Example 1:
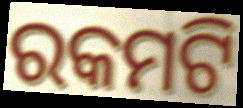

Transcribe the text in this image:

ରକମଟି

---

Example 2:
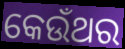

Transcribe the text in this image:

କେଉଁଥର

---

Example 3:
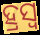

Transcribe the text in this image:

ହ୍ରସ୍ୱ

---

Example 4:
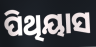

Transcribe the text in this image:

ପିଥିୟାସ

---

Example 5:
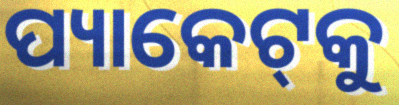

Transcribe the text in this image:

ପ୍ୟାକେଟ୍‌କୁ